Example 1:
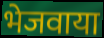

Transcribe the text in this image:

भेजवाया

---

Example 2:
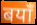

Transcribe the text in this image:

बयाँ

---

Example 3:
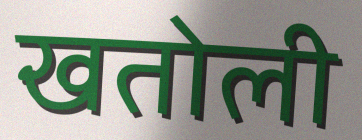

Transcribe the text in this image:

खतोली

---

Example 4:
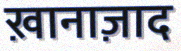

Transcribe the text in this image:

ख़ानाज़ाद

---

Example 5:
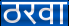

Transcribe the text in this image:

ठरवा